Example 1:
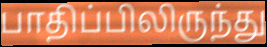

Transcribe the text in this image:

பாதிப்பிலிருந்து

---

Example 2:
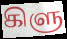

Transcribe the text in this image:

கிளு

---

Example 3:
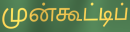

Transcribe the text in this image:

முன்கூட்டிப்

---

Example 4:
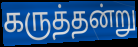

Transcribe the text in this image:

கருத்தன்று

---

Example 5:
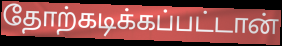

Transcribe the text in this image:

தோற்கடிக்கப்பட்டான்